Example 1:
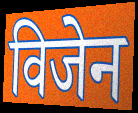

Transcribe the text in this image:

विजेन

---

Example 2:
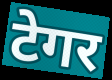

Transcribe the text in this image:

टेगर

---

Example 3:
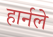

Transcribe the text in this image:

हार्नले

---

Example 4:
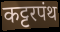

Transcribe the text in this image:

कट्टरपंथ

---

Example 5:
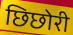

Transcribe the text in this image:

छिछोरी